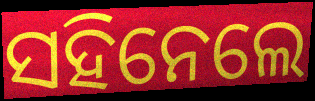
ସହିନେଲେ